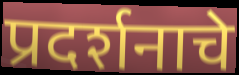
प्रदर्शनाचे